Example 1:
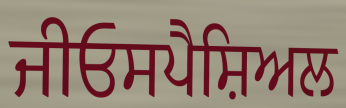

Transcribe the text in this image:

ਜੀਓਸਪੈਸ਼ਿਅਲ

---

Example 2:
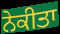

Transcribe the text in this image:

ਨੇਕੀਤਾ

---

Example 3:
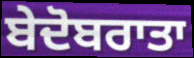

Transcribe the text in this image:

ਬੇਦੋਬਰਾਤਾ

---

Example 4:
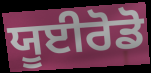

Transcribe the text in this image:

ਯੂਈਰੋਡੋ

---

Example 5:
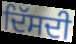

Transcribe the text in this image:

ਦਿੱਸਦੀ